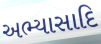
અભ્યાસાદિ